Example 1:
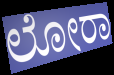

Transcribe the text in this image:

ಲೋರಾ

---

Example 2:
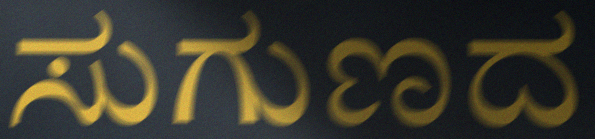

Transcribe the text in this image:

ಸುಗುಣದ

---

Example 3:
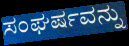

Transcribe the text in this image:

ಸಂಘರ್ಷವನ್ನು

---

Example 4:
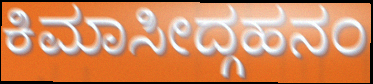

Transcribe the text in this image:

ಕಿಮಾಸೀದ್ಗಹನಂ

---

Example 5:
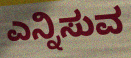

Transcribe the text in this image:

ಎನ್ನಿಸುವ